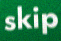
skip